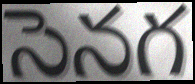
సెనగ